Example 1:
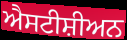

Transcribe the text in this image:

ਐਸਟੀਸ਼ੀਅਨ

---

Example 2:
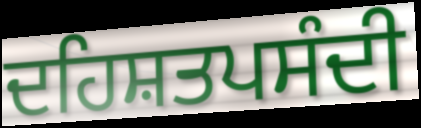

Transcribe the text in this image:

ਦਹਿਸ਼ਤਪਸੰਦੀ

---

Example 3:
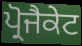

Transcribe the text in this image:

ਪ੍ਰੋਜੈਕੇਟ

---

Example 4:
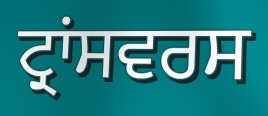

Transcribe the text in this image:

ਟ੍ਰਾਂਸਵਰਸ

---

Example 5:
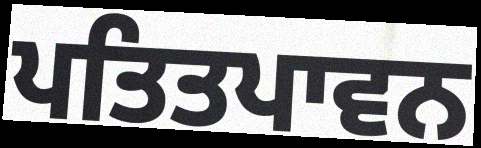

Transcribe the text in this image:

ਪਤਿਤਪਾਵਨ